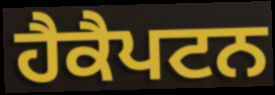
ਹੈਕੈਪਟਨ